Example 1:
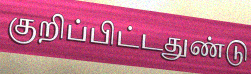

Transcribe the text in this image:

குறிப்பிட்டதுண்டு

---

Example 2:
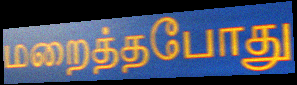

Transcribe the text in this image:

மறைத்தபோது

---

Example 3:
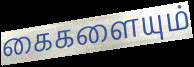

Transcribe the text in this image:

கைகளையும்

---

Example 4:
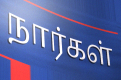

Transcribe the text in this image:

நார்கள்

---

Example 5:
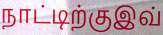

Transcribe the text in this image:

நாட்டிற்குஇவ்